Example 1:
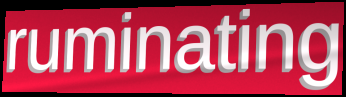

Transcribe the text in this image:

ruminating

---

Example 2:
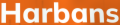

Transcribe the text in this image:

Harbans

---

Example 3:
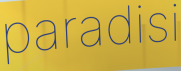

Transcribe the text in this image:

paradisi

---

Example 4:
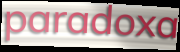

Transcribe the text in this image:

paradoxa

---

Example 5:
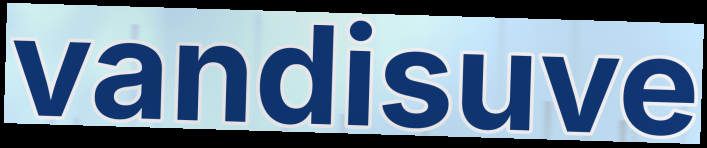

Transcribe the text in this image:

vandisuve